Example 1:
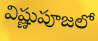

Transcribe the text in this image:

విష్ణుపూజలో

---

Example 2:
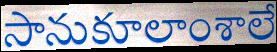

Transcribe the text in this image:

సానుకూలాంశాలే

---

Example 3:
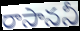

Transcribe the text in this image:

రాసాననీ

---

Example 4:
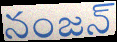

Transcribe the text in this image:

నంజన్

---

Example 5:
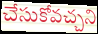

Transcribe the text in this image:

చేసుకోవచ్చని